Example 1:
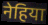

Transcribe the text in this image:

नेहिया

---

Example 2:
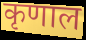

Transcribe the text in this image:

कृणाल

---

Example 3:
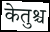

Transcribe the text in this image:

केतुश्च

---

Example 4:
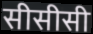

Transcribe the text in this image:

सीसीसी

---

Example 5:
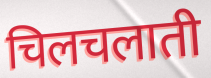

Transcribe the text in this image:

चिलचलाती